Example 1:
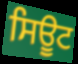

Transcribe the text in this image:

ਸਿਊਟ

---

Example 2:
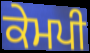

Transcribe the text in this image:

ਕੇਮਪੀ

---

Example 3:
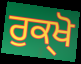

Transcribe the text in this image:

ਰੁਕ੍ਖੋ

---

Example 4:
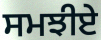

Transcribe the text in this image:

ਸਮਝੀਏ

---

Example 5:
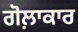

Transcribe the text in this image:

ਗੋਲ਼ਾਕਾਰ